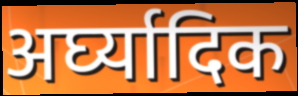
अर्घ्यादिक